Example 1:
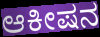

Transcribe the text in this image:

ಆಕೀಷನ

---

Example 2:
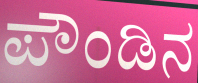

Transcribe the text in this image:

ಪೌಂಡಿನ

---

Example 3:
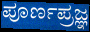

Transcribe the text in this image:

ಪೂರ್ಣಪ್ರಜ್ಞ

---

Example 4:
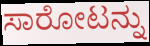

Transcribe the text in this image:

ಸಾರೋಟನ್ನು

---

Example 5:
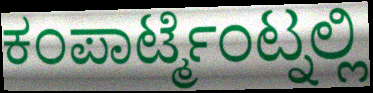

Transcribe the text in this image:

ಕಂಪಾರ್ಟ್ಮೆಂಟ್ನಲ್ಲಿ